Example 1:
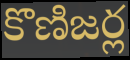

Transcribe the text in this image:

కొణిజర్ల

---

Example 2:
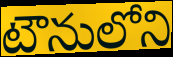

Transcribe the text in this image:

టౌనులోని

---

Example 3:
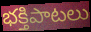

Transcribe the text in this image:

భక్తిపాటలు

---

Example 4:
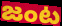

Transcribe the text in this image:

జంట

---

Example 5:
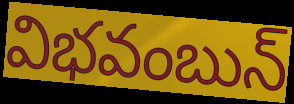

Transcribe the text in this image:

విభవంబున్